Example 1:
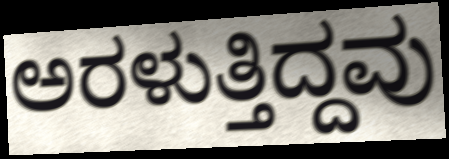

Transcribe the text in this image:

ಅರಳುತ್ತಿದ್ದವು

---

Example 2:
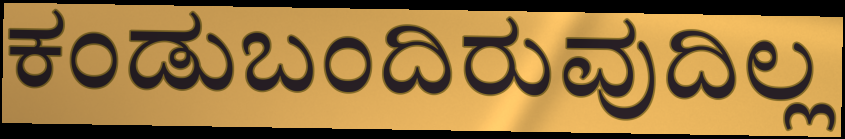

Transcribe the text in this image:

ಕಂಡುಬಂದಿರುವುದಿಲ್ಲ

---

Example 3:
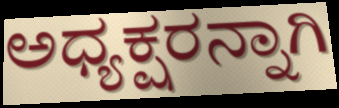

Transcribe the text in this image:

ಅಧ್ಯಕ್ಷರನ್ನಾಗಿ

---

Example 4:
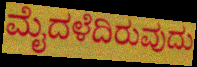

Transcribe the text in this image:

ಮೈದಳೆದಿರುವುದು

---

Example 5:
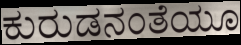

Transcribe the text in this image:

ಕುರುಡನಂತೆಯೂ